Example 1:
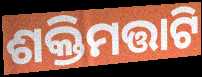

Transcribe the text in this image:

ଶକ୍ତିମତ୍ତାଟି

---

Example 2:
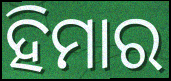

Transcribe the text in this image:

ହିମାର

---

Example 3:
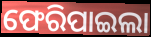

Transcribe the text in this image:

ଫେରିପାଇଲା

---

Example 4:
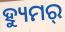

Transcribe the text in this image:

ହ୍ୟୁମର୍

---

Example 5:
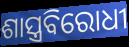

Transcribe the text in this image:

ଶାସ୍ତ୍ରବିରୋଧୀ